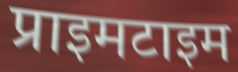
प्राइमटाइम